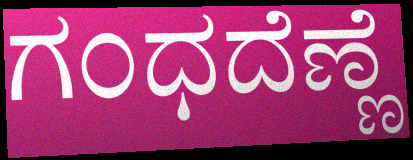
ಗಂಧದೆಣ್ಣೆ